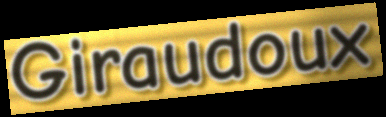
Giraudoux